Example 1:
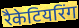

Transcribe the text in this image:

रैकेटियरिंग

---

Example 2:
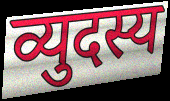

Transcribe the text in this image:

व्युदस्य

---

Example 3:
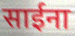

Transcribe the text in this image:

साईना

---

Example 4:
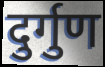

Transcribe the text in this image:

दुर्गुण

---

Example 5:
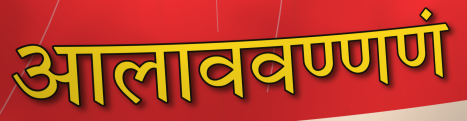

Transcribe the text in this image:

आलाववण्णणं